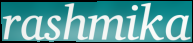
rashmika